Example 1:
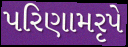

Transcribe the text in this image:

પરિણામરૃપે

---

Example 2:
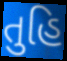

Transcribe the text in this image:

તુહિ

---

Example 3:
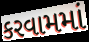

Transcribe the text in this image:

કરવામમાં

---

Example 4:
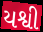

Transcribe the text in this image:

યશ્વી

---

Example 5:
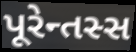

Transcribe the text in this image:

પૂરેન્તસ્સ